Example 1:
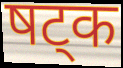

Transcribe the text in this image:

षट्क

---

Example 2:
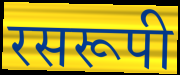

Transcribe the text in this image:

रसरूपी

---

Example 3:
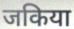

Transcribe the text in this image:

जकिया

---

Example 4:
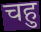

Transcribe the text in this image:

चहु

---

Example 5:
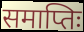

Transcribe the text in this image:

समाप्तिः